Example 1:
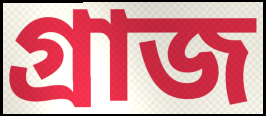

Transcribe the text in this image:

গ্ৰাজ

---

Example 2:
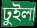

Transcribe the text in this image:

ঢুইলা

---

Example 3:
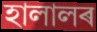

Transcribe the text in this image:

হালালৰ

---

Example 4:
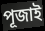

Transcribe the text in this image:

পূজাই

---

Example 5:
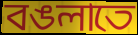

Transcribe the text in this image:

বঙলাতে